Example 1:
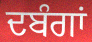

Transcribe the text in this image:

ਦਬੰਗਾਂ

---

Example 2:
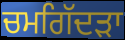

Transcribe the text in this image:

ਚਮਗਿੱਦੜਾ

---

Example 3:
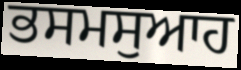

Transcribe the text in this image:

ਭਸਮਸੁਆਹ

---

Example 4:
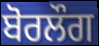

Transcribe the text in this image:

ਬੋਰਲੌਗ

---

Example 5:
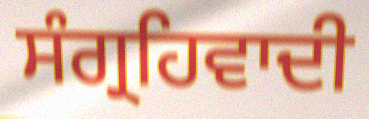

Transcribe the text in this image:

ਸੰਗ੍ਰਹਿਵਾਦੀ